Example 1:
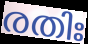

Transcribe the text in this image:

രതിഃ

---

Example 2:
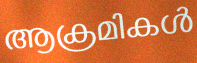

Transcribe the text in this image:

ആക്രമികൾ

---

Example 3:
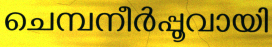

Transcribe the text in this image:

ചെമ്പനീർപ്പൂവായി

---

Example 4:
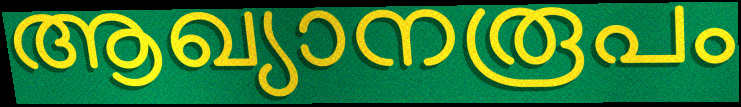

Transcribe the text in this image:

ആഖ്യാനരൂപം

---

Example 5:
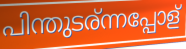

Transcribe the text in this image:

പിന്തുടര്ന്നപ്പോള്